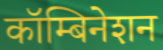
कॉम्बिनेशन